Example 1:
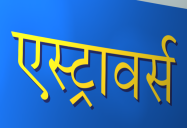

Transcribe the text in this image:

एस्ट्रावर्स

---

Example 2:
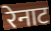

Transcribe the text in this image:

रेनाट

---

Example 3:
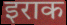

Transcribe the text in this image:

इराक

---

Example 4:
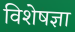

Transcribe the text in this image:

विशेषज्ञा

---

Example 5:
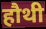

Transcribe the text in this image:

हौथी